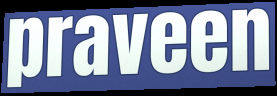
praveen